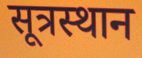
सूत्रस्थान